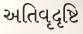
અતિવૃદૃષ્ટિ